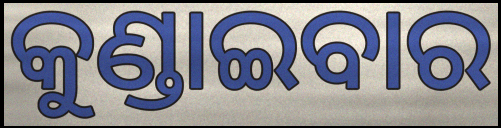
କୁଣ୍ଡାଇବାର